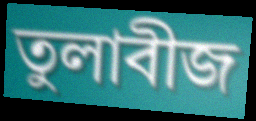
তুলাবীজ